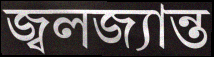
জ্বলজ্যান্ত